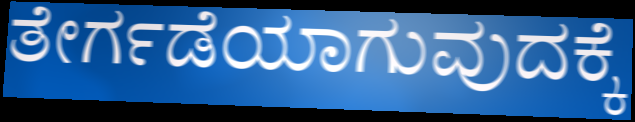
ತೇರ್ಗಡೆಯಾಗುವುದಕ್ಕೆ